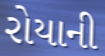
રોયાની